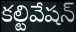
కల్టివేషన్